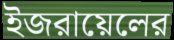
ইজরায়েলের